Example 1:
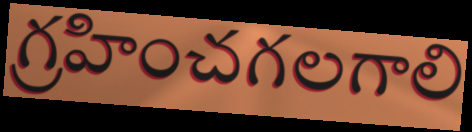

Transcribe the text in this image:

గ్రహించగలగాలి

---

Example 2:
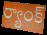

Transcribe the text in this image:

ర్యాంక్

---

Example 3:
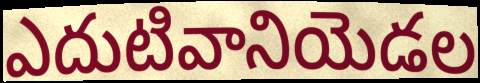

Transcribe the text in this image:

ఎదుటివానియెడల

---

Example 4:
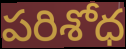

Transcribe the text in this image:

పరిశోధ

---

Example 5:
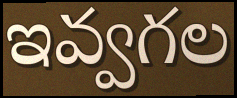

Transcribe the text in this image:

ఇవ్వగల